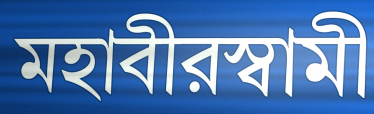
মহাবীরস্বামী